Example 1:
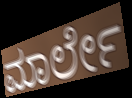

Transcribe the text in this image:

ಮಾರ್ಲೇ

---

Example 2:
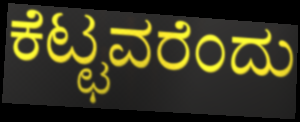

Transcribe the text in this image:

ಕೆಟ್ಟವರೆಂದು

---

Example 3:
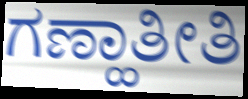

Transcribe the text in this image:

ಗಣ್ಹಾತೀತಿ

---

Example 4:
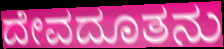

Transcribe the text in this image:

ದೇವದೂತನು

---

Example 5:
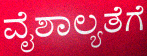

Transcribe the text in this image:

ವೈಶಾಲ್ಯತೆಗೆ